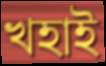
খহাই